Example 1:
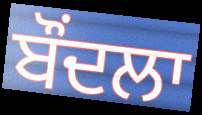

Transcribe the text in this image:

ਬੌਂਦਲਾ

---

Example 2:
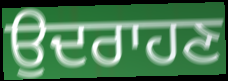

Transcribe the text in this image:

ਉਦਰਾਹਣ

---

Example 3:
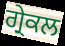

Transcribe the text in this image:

ਗ੍ਰੇਕਲ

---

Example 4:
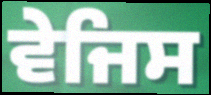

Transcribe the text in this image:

ਵੇਜਿਸ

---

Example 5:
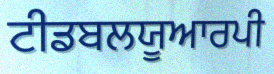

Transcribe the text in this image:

ਟੀਡਬਲਯੂਆਰਪੀ